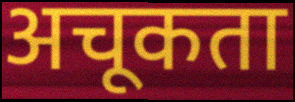
अचूकता